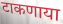
टाकणाया